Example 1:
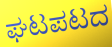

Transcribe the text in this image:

ಘಟಪಟದ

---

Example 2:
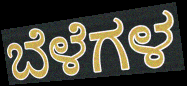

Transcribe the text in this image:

ಬೆಳೆಗಳ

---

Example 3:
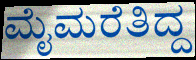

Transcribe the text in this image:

ಮೈಮರೆತಿದ್ದ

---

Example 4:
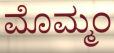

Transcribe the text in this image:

ಮೊಮ್ಮಂ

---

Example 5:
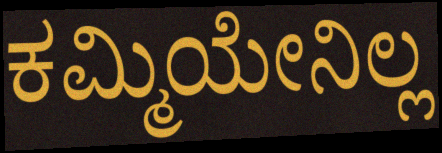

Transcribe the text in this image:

ಕಮ್ಮಿಯೇನಿಲ್ಲ